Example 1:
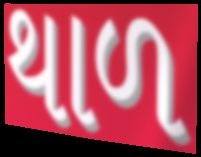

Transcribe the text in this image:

થાળ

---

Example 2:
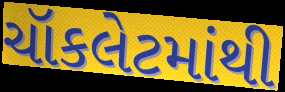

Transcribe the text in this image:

ચૉકલેટમાંથી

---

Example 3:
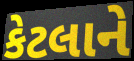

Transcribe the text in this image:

કેટલાને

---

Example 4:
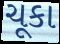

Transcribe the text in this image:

ચૂકા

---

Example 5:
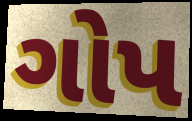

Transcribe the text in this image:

ગોપ